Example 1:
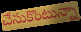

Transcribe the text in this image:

చేసుకొంటున్నా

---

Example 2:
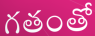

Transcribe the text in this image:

గతంతో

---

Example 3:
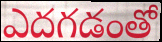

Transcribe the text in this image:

ఎదగడంతో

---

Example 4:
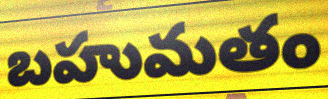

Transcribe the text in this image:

బహుమతం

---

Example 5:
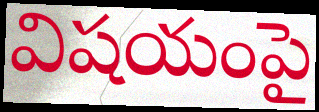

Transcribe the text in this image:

విషయంపై